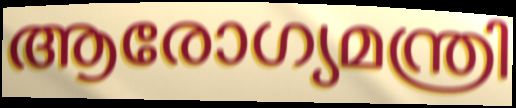
ആരോഗ്യമന്ത്രി